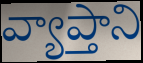
వ్యాప్తాని